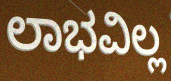
ಲಾಭವಿಲ್ಲ